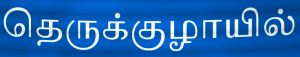
தெருக்குழாயில்